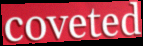
coveted